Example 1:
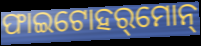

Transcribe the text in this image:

ଫାଇଟୋହର୍‌ମୋନ୍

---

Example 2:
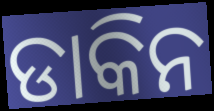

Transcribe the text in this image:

ଡାକିନ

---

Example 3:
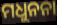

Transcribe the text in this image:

ମଧୁନନା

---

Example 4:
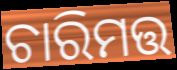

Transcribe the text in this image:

ଚାରିମତ୍ତ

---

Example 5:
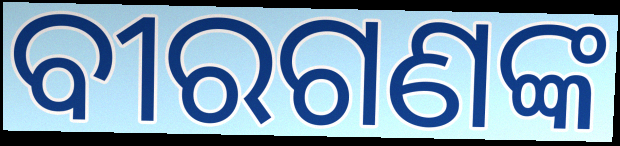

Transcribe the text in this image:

ବୀରଗଣଙ୍କ